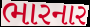
ભારનાર